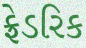
ફ્રેડરિક